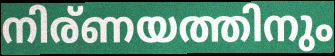
നിര്ണയത്തിനും